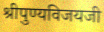
श्रीपुण्यविजयजी